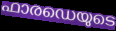
ഫാരഡെയുടെ